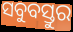
ସବୁବସ୍ତୁର